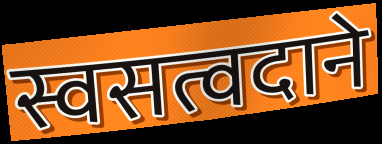
स्वसत्वदाने